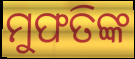
ମୁଫତିଙ୍କ